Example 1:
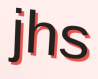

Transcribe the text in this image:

jhs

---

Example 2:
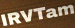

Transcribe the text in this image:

IRVTam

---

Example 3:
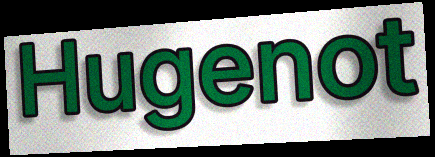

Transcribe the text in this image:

Hugenot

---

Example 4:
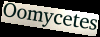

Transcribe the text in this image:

Oomycetes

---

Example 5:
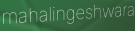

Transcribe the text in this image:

mahalingeshwara